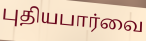
புதியபார்வை